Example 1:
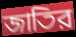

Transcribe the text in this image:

জাতির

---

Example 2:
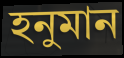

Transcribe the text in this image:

হনুমান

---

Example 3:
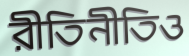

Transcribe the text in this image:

রীতিনীতিও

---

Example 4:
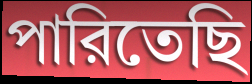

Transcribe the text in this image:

পারিতেছি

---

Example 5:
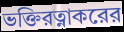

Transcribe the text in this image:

ভক্তিরত্নাকরের